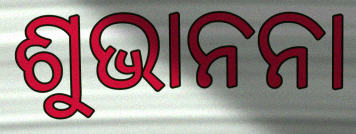
ଶୁଭାନନା